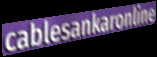
cablesankaronline